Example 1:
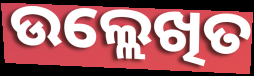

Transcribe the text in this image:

ଉଲ୍ଲେଖିତ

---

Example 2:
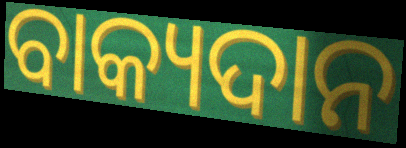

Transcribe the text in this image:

ବାକ୍ୟଦାନ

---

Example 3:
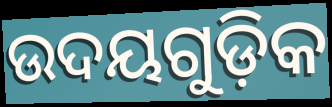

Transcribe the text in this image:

ଉଦୟଗୁଡ଼ିକ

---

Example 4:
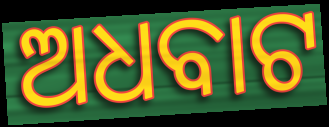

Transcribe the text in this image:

ଅଧବାଟ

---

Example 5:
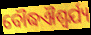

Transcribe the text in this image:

ବୌଦ୍ଧଐଶ୍ୱର୍ଯ୍ୟ